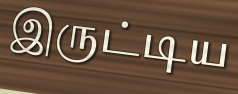
இருட்டிய